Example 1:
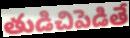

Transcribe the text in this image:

తుడిచిపెడితే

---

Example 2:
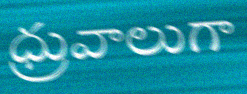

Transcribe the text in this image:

ధ్రువాలుగా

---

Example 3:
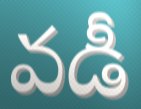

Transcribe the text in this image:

వడీ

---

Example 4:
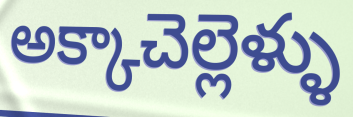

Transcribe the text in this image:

అక్కాచెల్లెళ్ళు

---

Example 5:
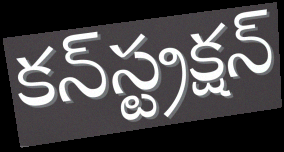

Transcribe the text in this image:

కన్‍స్ట్రక్షన్